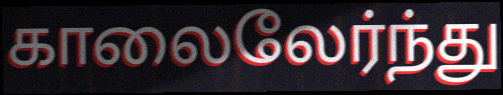
காலைலேர்ந்து